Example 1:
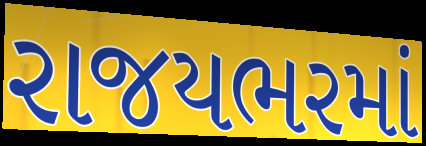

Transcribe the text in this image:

રાજયભરમાં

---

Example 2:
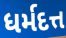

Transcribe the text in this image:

ધર્મદત્ત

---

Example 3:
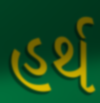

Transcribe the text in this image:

હર્થ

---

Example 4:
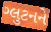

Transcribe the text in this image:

ગ્લુટનને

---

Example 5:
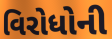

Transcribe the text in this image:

વિરોધોની